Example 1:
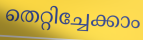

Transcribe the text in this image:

തെറ്റിച്ചേക്കാം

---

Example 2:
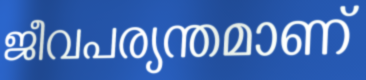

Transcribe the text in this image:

ജീവപര്യന്തമാണ്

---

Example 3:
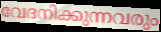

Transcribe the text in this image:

വേദനിക്കുന്നവരും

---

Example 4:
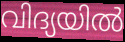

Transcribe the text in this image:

വിദ്യയിൽ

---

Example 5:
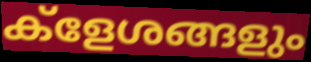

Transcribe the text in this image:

ക്ളേശങ്ങളും